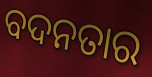
ବଦନତାର